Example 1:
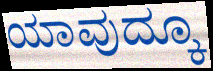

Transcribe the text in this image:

ಯಾವುದ್ಕೂ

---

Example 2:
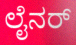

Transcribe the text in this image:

ಲೈನರ್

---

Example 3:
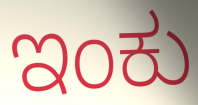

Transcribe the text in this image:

ಇಂಕು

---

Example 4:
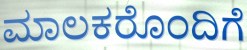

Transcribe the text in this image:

ಮಾಲಕರೊಂದಿಗೆ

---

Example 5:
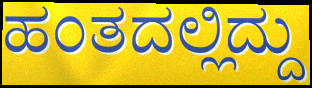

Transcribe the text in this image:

ಹಂತದಲ್ಲಿದ್ದು